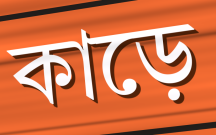
কাড়ে